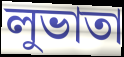
লুভাতা